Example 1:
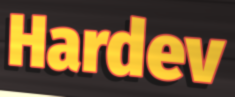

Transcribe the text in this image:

Hardev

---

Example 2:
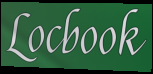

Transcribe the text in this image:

Locbook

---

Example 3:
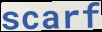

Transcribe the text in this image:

scarf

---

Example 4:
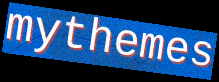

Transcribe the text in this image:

mythemes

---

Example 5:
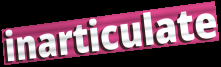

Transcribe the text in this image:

inarticulate